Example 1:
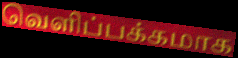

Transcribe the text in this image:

வெளிப்பக்கமாக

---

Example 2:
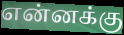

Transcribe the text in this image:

என்னக்கு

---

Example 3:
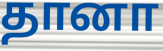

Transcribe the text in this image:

தானா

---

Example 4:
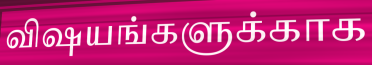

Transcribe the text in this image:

விஷயங்களுக்காக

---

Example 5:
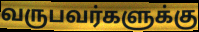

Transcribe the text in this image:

வருபவர்களுக்கு